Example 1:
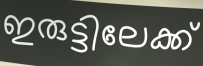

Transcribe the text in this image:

ഇരുട്ടിലേക്ക്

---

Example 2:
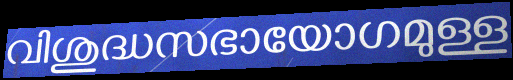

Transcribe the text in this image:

വിശുദ്ധസഭായോഗമുള്ള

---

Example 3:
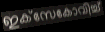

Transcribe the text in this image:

ഇക്‌സേകോവിച്ച്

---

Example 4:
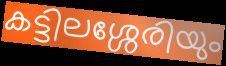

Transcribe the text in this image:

കട്ടിലശ്ശേരിയും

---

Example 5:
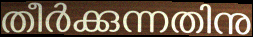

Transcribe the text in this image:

തീർക്കുന്നതിനു